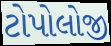
ટોપોલોજી